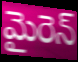
మైరెన్